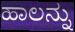
ಹಾಲನ್ನು